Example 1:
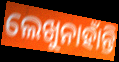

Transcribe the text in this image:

ଲେଖୁନାହାଁନ୍ତି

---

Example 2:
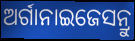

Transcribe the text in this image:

ଅର୍ଗାନାଇଜେସନ୍ରୁ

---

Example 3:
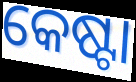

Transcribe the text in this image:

କେଷ୍ଟା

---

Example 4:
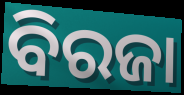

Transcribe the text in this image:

ବିରଜା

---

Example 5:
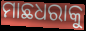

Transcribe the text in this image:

ମାଛଧରାକୁ